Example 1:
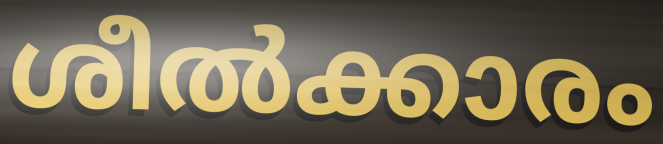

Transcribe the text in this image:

ശീൽക്കാരം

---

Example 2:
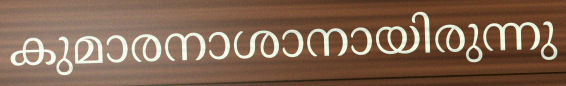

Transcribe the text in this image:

കുമാരനാശാനായിരുന്നു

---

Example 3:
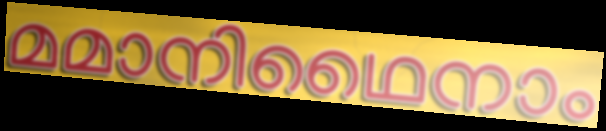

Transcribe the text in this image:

മമാനിഥൈനാം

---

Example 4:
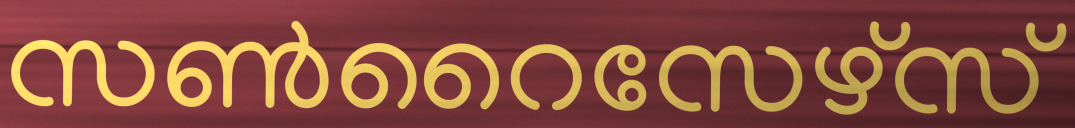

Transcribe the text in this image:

സൺറൈസേഴ്സ്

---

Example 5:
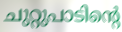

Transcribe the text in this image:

ചുറ്റുപാടിന്റെ